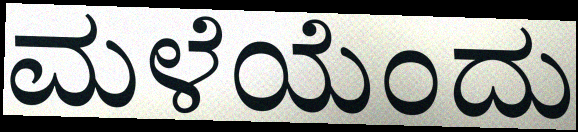
ಮಳೆಯೆಂದು